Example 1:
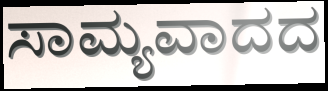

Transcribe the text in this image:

ಸಾಮ್ಯವಾದದ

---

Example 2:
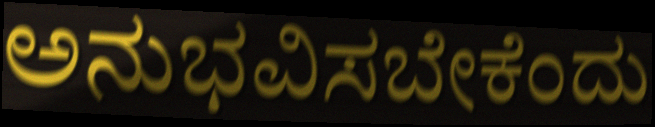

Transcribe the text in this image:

ಅನುಭವಿಸಬೇಕೆಂದು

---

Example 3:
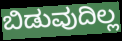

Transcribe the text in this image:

ಬಿಡುವುದಿಲ್ಲ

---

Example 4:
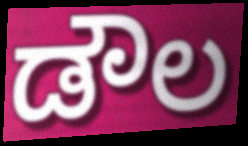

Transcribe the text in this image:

ಡೌಲ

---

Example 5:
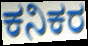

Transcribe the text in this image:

ಕನಿಕರ